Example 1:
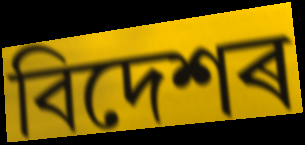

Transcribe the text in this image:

বিদেশৰ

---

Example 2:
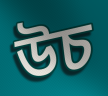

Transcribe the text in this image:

উচ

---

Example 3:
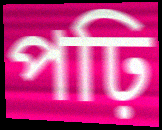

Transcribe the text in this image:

পঢ়ি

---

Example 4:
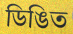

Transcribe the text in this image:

ডিঙিত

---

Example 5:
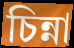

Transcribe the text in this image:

চিন্না